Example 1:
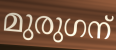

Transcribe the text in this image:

മുരുഗന്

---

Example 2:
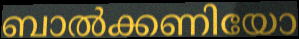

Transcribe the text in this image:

ബാൽക്കണിയോ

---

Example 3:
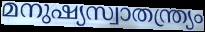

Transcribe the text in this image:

മനുഷ്യസ്വാതന്ത്ര്യം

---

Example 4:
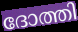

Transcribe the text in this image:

ദോത്തി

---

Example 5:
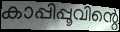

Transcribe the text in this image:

കാപ്പിപ്പൂവിന്റെ